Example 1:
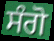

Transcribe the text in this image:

ਸੰਗੋ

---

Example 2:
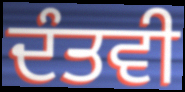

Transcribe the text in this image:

ਦੰਤਵੀ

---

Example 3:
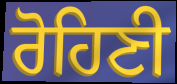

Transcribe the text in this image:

ਰੋਹਿਣੀ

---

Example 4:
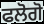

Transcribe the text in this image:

ਫਲੋਗੋ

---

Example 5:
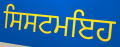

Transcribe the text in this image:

ਸਿਸਟਮਇਹ